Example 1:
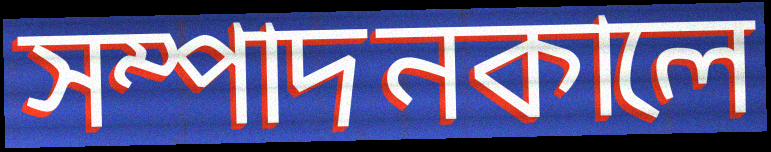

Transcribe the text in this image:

সম্পাদনকালে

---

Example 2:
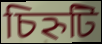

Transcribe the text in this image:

চিহ্নটি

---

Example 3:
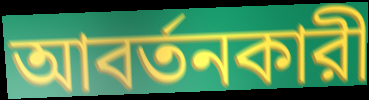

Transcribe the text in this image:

আবর্তনকারী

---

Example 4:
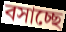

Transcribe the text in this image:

বসাচ্ছে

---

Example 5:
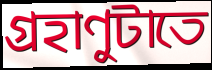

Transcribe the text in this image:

গ্রহাণুটাতে